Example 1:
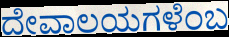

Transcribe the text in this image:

ದೇವಾಲಯಗಳೆಂಬ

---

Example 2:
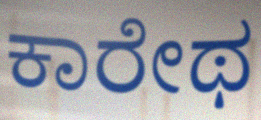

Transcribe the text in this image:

ಕಾರೇಥ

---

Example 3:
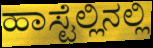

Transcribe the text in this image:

ಹಾಸ್ಟೆಲ್ಲಿನಲ್ಲಿ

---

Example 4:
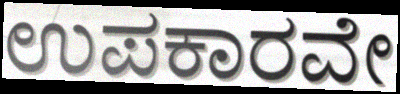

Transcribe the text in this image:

ಉಪಕಾರವೇ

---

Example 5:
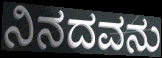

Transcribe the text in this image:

ನಿನದವನು